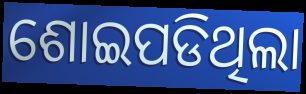
ଶୋଇପଡିଥିଲା